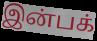
இன்பக்